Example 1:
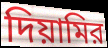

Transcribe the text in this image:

দিয়ামির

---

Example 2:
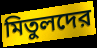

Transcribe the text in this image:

মিতুলদের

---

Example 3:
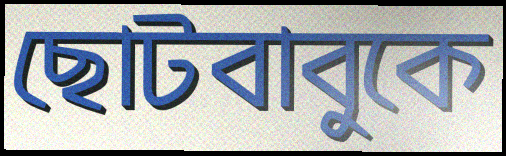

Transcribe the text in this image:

ছোটবাবুকে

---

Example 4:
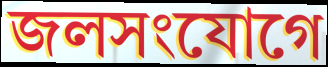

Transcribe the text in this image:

জলসংযোগে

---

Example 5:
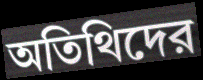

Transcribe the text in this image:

অতিথিদের